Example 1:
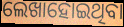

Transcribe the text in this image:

ଲେଖାହୋଇଥିବା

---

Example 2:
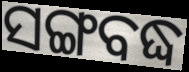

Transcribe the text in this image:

ସଙ୍ଗବଦ୍ଧ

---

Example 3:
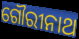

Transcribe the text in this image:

ଗୌରୀନାଥ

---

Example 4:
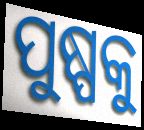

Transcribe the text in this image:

ପୁଷ୍ପକୁ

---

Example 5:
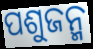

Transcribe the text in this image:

ପଶୁଜନ୍ମ